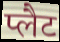
प्लैट